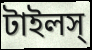
টাইলস্